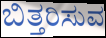
ಬಿತ್ತರಿಸುವ